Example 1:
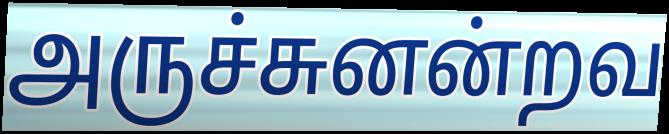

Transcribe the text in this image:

அருச்சுனன்றவ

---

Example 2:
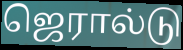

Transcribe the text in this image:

ஜெரால்டு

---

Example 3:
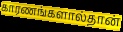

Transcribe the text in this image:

காரணங்களால்தான்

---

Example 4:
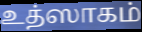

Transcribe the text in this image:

உத்ஸாகம்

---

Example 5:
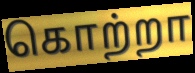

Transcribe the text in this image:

கொற்றா